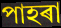
পাহৰা